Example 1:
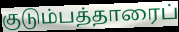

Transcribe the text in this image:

குடும்பத்தாரைப்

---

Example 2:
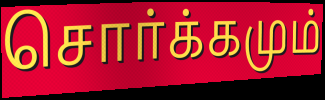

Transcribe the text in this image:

சொர்க்கமும்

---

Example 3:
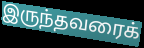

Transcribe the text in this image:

இருந்தவரைக்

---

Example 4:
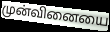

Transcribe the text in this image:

முன்வினையை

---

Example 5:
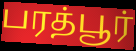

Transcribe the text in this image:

பரத்பூர்